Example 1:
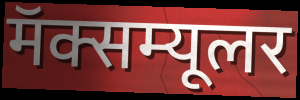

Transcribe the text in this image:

मॅक्सम्यूलर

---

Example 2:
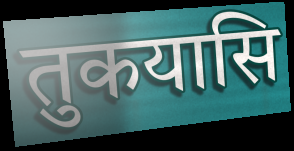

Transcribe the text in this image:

तुकयासि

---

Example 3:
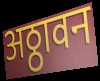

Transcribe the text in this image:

अठ्ठावन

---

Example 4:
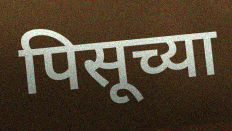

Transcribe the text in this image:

पिसूच्या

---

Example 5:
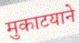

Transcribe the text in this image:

मुकाटयाने